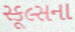
સ્કૂલ્સના